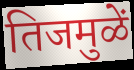
तिजमुळें